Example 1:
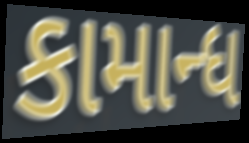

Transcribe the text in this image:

કામાન્ધ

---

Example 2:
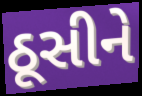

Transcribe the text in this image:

ઠૂસીને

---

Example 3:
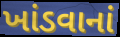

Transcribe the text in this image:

ખાંડવાનાં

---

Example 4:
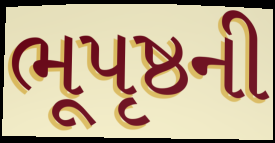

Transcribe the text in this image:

ભૂપૃષ્ઠની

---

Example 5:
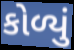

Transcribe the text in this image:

કોળ્યું